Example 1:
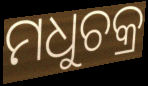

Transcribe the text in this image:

ମଧୁଚକ୍ର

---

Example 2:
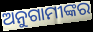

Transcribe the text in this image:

ଅନୁଗାମୀଙ୍କର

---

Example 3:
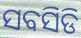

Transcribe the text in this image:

ସବସିଡି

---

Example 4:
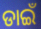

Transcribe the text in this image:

ଡାଇଁ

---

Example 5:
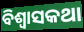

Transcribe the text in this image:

ବିଶ୍ଵାସକଥା